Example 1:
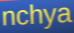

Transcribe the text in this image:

nchya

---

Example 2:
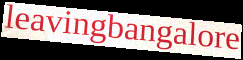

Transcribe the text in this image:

leavingbangalore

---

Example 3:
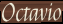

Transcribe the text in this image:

Octavio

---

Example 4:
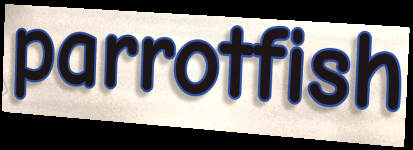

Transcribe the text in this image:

parrotfish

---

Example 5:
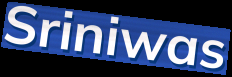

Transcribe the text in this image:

Sriniwas